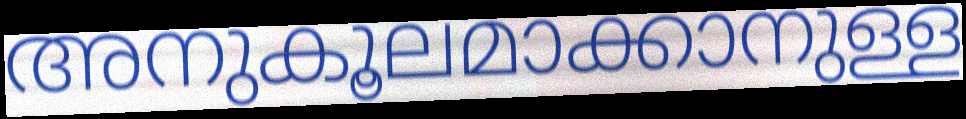
അനുകൂലമാക്കാനുള്ള